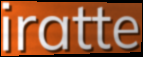
iratte